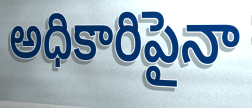
అధికారిపైనా